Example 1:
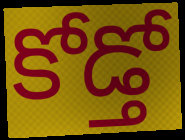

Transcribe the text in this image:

కోడ్తో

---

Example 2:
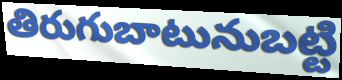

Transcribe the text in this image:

తిరుగుబాటునుబట్టి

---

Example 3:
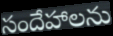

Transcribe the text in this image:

సందేహాలను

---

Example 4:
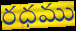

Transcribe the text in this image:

రధము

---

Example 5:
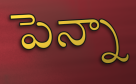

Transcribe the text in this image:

పెన్నా